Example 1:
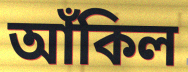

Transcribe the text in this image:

আঁকিল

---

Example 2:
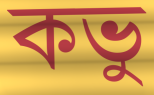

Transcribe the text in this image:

কভু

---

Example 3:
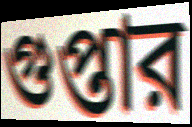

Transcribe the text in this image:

গুপ্তার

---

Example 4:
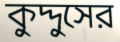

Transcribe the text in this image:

কুদ্দুসের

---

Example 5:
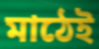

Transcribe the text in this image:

মাঠেই